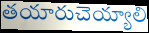
తయారుచెయ్యాలి